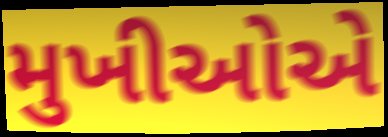
મુખીઓએ